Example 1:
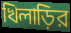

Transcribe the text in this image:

খিলাড়ির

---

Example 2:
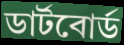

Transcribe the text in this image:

ডার্টবোর্ড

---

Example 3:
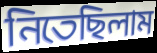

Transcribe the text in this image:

নিতেছিলাম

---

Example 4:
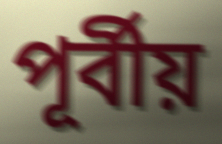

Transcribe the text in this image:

পূর্বীয়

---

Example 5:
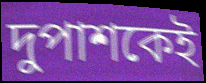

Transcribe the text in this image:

দুপাশকেই